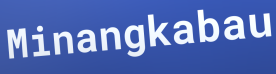
Minangkabau